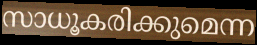
സാധൂകരിക്കുമെന്ന